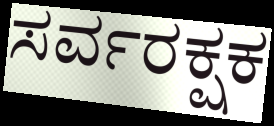
ಸರ್ವರಕ್ಷಕ